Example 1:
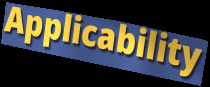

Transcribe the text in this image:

Applicability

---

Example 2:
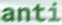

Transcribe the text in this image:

anti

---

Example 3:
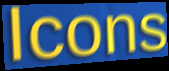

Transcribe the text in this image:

Icons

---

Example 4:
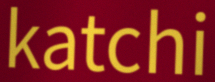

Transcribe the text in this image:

katchi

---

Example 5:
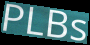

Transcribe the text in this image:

PLBs